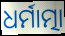
ଧର୍ମାତ୍ମା